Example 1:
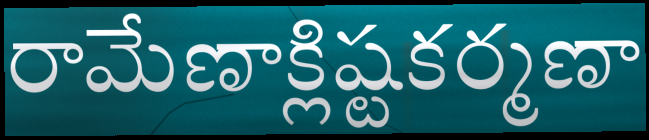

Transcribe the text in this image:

రామేణాక్లిష్టకర్మణా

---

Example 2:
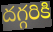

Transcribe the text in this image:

దగ్గరికి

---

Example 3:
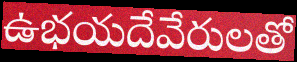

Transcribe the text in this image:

ఉభయదేవేరులతో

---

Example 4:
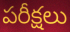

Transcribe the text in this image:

పరీక్షలు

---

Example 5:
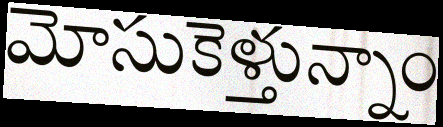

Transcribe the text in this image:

మోసుకెళ్తున్నాం